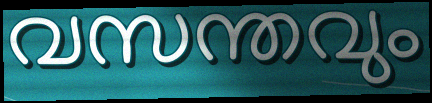
വസന്തവും